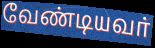
வேண்டியவர்